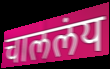
चाललंय